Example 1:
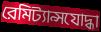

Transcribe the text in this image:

রেমিট্যান্সযোদ্ধা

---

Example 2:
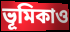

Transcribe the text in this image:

ভূমিকাও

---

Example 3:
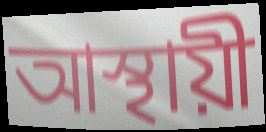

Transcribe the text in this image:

আস্থায়ী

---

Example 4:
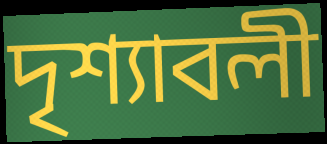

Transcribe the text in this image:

দৃশ্যাবলী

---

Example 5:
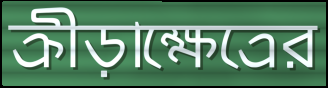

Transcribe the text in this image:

ক্রীড়াক্ষেত্রের